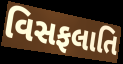
વિસફલાતિ